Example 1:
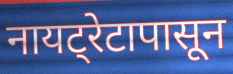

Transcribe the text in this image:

नायट्रेटापासून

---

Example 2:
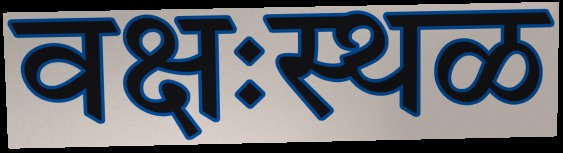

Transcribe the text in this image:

वक्षःस्थळ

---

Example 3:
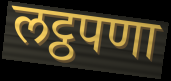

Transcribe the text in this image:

लट्ठपणा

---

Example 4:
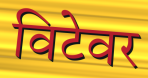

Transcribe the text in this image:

विटेवर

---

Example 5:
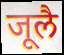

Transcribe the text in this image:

जूलै